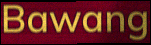
Bawang